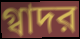
গ্বাদর